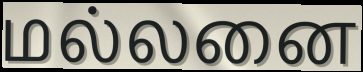
மல்லனை